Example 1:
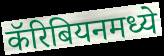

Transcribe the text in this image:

कॅरिबियनमध्ये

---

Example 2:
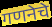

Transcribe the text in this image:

गणनेचे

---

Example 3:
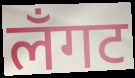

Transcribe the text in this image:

लँगट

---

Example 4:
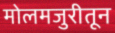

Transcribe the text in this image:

मोलमजुरीतून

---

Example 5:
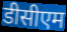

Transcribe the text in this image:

डीसीएम